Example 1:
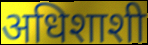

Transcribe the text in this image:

अधिशाशी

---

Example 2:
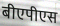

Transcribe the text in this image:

बीएपीएस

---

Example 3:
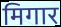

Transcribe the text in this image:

मिगार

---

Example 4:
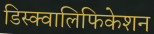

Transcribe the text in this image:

डिस्क्वालिफिकेशन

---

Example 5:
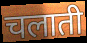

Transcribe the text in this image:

चलाती